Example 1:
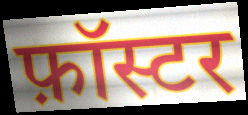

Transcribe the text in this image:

फ़ॉस्टर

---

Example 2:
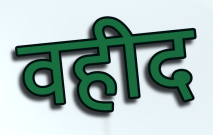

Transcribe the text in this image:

वहीद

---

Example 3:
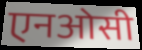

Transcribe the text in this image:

एनओसी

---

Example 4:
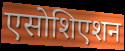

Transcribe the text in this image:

एसोशिएशन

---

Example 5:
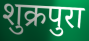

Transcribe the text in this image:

शुक्रपुरा